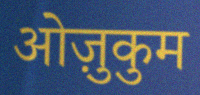
ओज़ुकुम